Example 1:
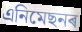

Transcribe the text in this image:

এনিমেছনৰ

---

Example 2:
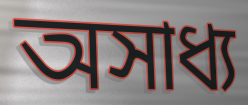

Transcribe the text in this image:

অসাধ্য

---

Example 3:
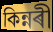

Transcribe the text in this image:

কিন্নৰী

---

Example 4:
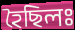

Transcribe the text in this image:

হৈছিলঃ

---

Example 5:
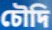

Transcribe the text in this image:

চৌদি